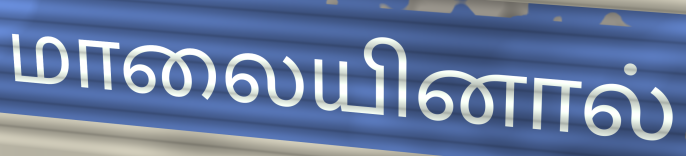
மாலையினால்